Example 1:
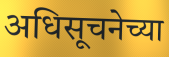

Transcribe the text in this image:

अधिसूचनेच्या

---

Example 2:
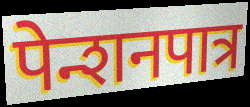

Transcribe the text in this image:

पेन्शनपात्र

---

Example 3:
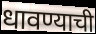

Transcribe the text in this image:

धावण्याची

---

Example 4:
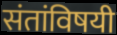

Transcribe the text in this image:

संतांविषयी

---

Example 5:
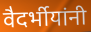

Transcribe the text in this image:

वैदर्भीयांनी